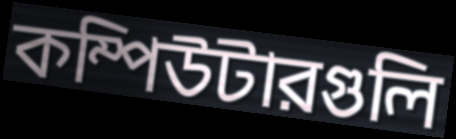
কম্পিউটারগুলি